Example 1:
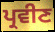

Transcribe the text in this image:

ਪ੍ਰਵੀਣ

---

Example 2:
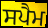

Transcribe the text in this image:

ਸਪੈਮ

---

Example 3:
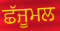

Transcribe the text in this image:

ਛੱਜੂਮਲ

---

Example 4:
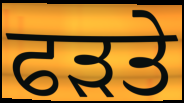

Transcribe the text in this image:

ਫੜਤੇ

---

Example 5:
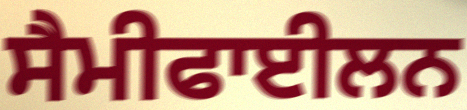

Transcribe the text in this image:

ਸੈਮੀਫਾਈਲਨ